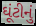
ઘૂંટીનું